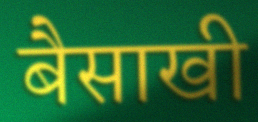
बैसाखी